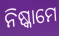
ନିଷ୍କାମେ